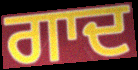
ਗਾਦ